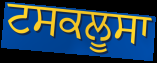
ਟਸਕਲੂਸਾ